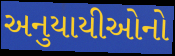
અનુયાયીઓનો